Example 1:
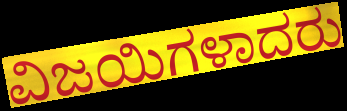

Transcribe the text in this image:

ವಿಜಯಿಗಳಾದರು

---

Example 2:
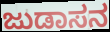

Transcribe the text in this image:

ಜುಡಾಸನ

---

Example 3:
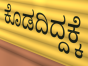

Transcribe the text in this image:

ಕೊಡದಿದ್ದಕ್ಕೆ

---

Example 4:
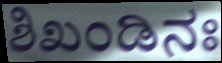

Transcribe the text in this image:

ಶಿಖಂಡಿನಃ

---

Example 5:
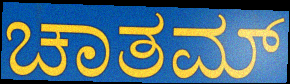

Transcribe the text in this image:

ಚಾತಮ್